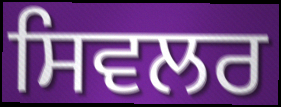
ਸਿਵਲਰ